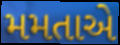
મમતાએ